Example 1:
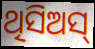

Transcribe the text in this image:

ଥିସିଅସ୍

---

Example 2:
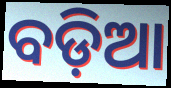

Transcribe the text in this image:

ବଡ଼ିଆ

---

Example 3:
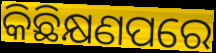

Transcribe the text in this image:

କିଛିକ୍ଷଣପରେ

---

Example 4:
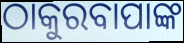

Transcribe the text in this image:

ଠାକୁରବାପାଙ୍କ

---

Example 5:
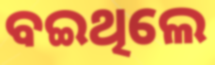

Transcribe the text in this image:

ବଇଥିଲେ